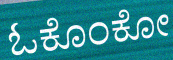
ಓಕೊಂಕೋ